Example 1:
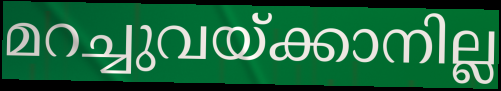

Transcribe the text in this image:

മറച്ചുവയ്ക്കാനില്ല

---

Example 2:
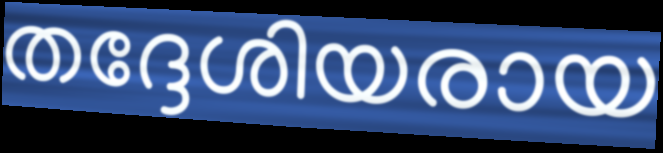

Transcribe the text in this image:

തദ്ദേശിയരായ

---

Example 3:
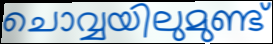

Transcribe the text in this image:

ചൊവ്വയിലുമുണ്ട്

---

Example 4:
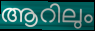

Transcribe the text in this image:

ആറിലും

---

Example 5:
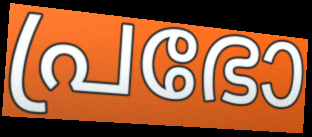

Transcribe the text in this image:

പ്രഭോ